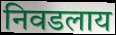
निवडलाय